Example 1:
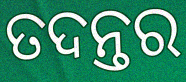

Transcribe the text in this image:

ତଦନ୍ତର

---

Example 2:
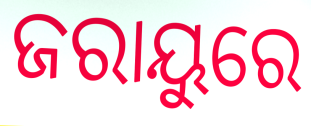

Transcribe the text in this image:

ଜରାୟୁରେ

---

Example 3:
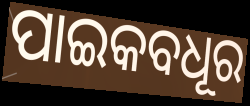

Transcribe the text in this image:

ପାଇକବଧୂର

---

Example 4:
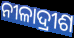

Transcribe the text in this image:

ନୀଳାଦ୍ରୀଶ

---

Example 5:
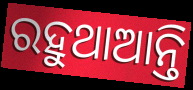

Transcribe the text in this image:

ରହୁଥାଆନ୍ତି